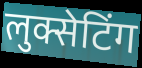
लुक्सेटिंग